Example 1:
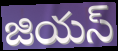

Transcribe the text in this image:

జియస్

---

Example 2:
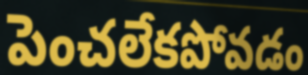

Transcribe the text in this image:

పెంచలేకపోవడం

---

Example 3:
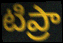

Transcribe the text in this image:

టిప్రా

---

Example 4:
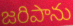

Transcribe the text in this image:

జరిపాను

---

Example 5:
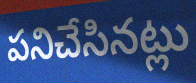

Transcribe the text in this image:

పనిచేసినట్లు